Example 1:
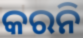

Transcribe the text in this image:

କରନି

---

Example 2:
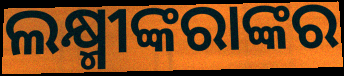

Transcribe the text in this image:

ଲକ୍ଷ୍ମୀଙ୍କରାଙ୍କର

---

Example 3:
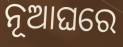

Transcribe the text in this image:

ନୂଆଘରେ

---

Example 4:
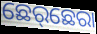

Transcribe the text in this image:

ଛେର୍‌ଛେରା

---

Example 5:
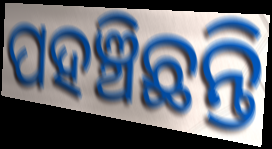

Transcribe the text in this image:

ପହଞ୍ଚିଛନ୍ତି